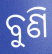
ବୁଣି